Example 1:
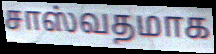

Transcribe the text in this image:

சாஸ்வதமாக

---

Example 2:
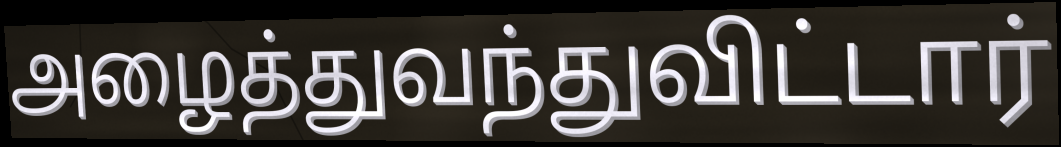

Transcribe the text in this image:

அழைத்துவந்துவிட்டார்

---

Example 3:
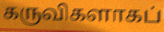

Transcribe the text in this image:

கருவிகளாகப்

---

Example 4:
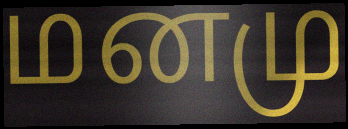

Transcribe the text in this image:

மனமு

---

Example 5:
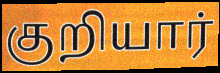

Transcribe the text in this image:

குறியார்